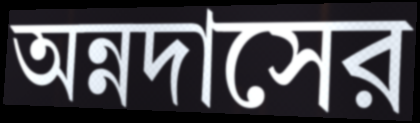
অন্নদাসের